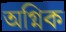
অগ্নিক